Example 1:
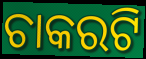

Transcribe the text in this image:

ଚାକରଟି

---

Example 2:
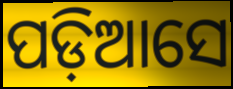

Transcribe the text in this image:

ପଡ଼ିଆସେ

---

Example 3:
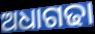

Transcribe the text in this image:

ଅଧାଗଢା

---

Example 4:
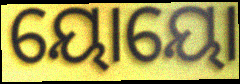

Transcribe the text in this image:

ୟୋୟୋ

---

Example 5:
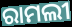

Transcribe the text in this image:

ରାମଲୀ